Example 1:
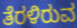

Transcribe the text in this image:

ತೆರಳಿರುವ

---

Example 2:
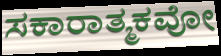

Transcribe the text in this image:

ಸಕಾರಾತ್ಮಕವೋ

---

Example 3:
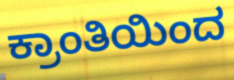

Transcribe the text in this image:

ಕ್ರಾಂತಿಯಿಂದ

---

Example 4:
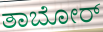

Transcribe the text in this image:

ತಾಬೋರ್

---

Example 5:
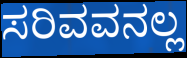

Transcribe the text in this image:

ಸರಿವವನಲ್ಲ